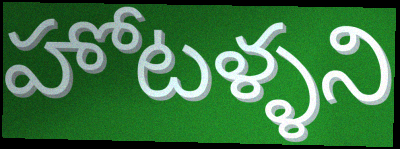
హోటళ్ళని